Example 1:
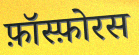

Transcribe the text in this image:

फ़ॉस्फ़ोरस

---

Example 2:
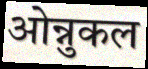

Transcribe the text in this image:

ओन्नुकल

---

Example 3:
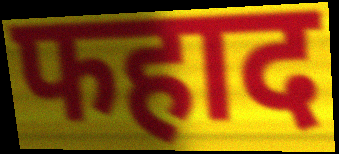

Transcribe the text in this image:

फहाद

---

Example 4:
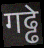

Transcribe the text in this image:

गढ्ढे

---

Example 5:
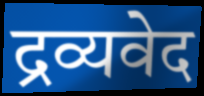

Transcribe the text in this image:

द्रव्यवेद